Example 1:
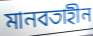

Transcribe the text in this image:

মানবতাহীন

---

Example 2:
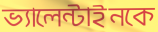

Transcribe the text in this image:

ভ্যালেন্টাইনকে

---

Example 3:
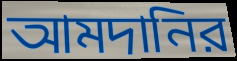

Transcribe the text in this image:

আমদানির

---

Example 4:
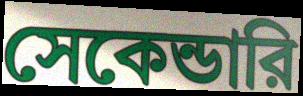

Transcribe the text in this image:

সেকেন্ডারি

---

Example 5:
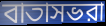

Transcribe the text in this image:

বাতাসভরা